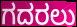
ಗದರಲು